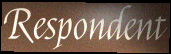
Respondent